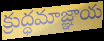
క్రుద్ధమాజ్ఞాయ